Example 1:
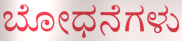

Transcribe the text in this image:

ಬೋಧನೆಗಳು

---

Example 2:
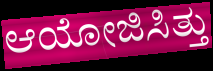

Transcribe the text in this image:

ಆಯೋಜಿಸಿತ್ತು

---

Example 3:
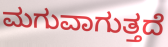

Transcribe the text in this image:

ಮಗುವಾಗುತ್ತದೆ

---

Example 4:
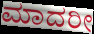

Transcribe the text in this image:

ಮಾದರೀ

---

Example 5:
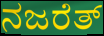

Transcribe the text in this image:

ನಜರೆತ್